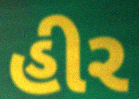
હીર